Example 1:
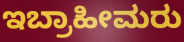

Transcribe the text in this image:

ಇಬ್ರಾಹೀಮರು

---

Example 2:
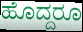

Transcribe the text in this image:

ಹೊದ್ದರೂ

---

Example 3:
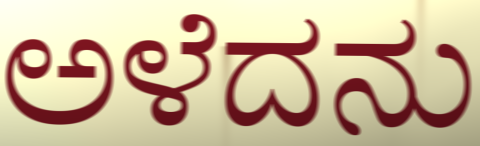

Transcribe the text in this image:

ಅಳೆದನು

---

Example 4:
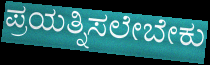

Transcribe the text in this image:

ಪ್ರಯತ್ನಿಸಲೇಬೇಕು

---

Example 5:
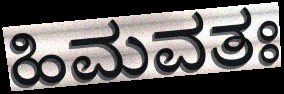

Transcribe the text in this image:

ಹಿಮವತಃ